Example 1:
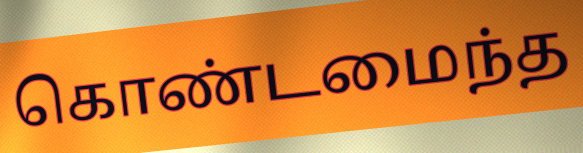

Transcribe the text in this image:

கொண்டமைந்த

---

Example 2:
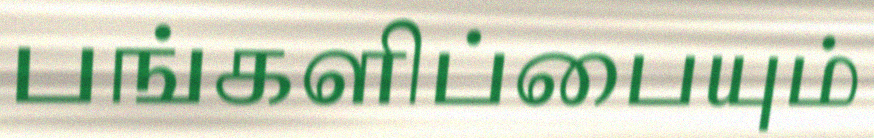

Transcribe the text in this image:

பங்களிப்பையும்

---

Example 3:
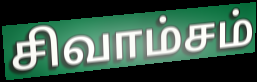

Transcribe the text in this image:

சிவாம்சம்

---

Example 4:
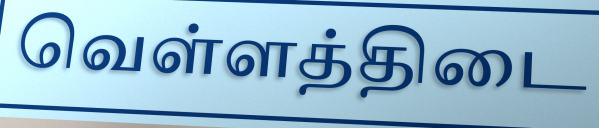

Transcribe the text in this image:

வெள்ளத்திடை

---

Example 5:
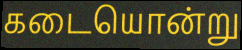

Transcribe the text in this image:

கடையொன்று